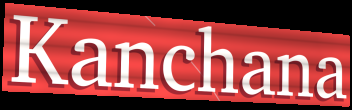
Kanchana